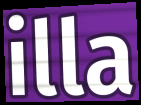
illa